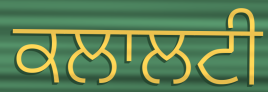
ਕਲਾਲਟੀ